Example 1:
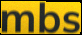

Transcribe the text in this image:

mbs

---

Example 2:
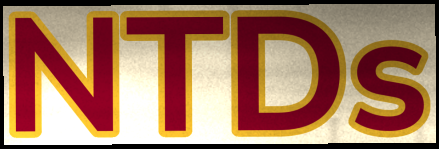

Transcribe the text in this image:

NTDs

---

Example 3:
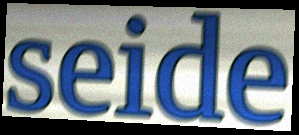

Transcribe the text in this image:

seide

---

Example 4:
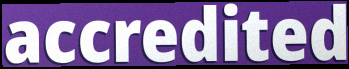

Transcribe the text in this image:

accredited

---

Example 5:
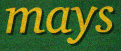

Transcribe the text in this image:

mays